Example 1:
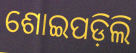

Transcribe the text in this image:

ଶୋଇପଡ଼ିଲି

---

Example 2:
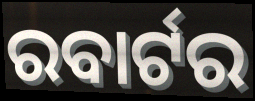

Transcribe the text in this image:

ରବାର୍ଟର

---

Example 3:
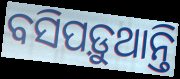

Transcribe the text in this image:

ବସିପଡ଼ୁଥାନ୍ତି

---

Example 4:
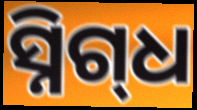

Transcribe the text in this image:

ସ୍ନିଗ୍‌ଧ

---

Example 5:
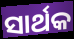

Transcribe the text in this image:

ସାର୍ଥକ